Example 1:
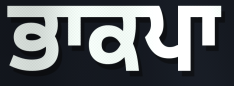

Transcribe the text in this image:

ਭਾਕਪਾ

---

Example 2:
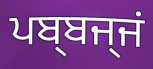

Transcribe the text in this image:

ਪਬ੍ਬਜ੍ਜਂ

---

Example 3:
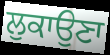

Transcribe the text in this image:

ਲੁਕਾਉਣਾ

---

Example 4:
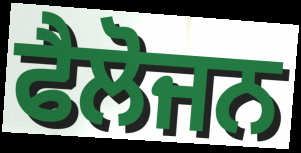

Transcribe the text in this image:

ਫੈਲੋਜਨ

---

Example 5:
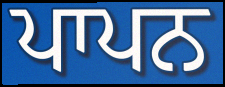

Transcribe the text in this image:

ਪਾਪਨ